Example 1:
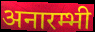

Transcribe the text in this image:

अनारम्भी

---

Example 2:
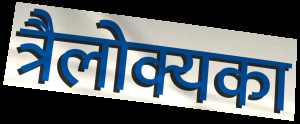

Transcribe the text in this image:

त्रैलोक्यका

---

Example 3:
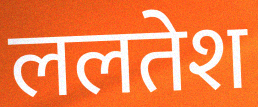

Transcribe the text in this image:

ललतेश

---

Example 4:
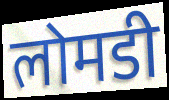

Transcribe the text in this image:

लोमडी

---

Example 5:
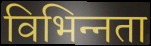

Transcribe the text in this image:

विभिन्‍नता